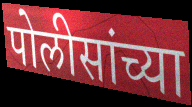
पोलीसांच्या